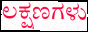
ಲಕ್ಷಣಗಳು